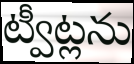
ట్వీట్లను